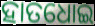
ହାତଧୋଇ